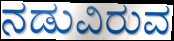
ನಡುವಿರುವ